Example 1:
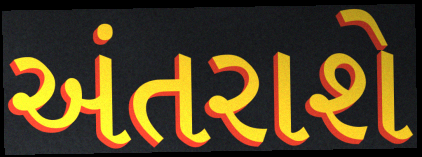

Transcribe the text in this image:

અંતરાશે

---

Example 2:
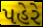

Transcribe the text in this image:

પહેરે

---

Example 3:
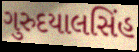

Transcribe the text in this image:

ગુરુદયાલસિંહ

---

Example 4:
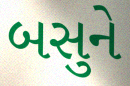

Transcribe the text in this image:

બસુને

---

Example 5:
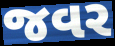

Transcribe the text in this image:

જવર